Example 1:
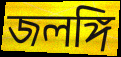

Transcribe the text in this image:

জলঙ্গি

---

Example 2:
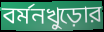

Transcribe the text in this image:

বর্মনখুড়োর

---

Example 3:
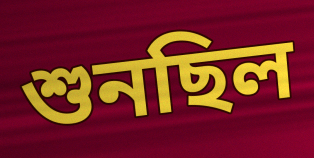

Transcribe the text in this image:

শুনছিল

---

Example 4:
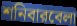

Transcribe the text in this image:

শনিবারবেলা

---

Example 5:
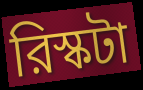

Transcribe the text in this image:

রিস্কটা